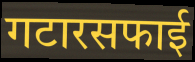
गटारसफाई